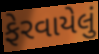
ફેરવાયેલું